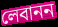
লেবানন